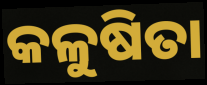
କଳୁଷିତା